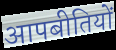
आपबीतियों